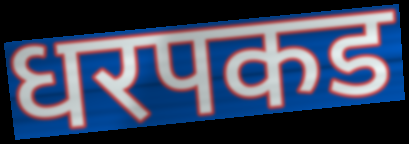
धरपकड